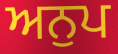
ਅਨੁਪ